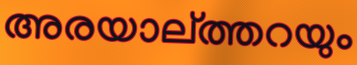
അരയാല്ത്തറയും